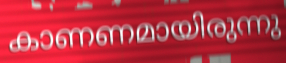
കാണണമായിരുന്നു